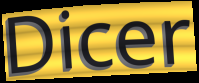
Dicer